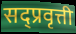
सद्प्रवृत्ती